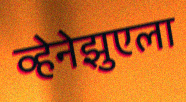
व्हेनेझुएला